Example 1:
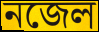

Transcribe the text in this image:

নজেল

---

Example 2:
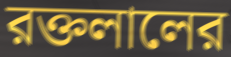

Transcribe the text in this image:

রক্তলালের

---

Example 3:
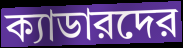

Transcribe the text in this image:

ক্যাডারদের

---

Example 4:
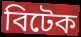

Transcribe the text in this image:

বিটেক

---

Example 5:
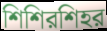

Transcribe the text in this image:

শিশিরশিহর